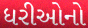
ધરીઓનો